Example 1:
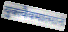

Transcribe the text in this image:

युक्त्वैवमात्मानं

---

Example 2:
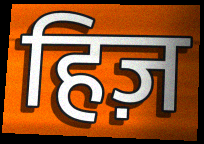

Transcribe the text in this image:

हिज़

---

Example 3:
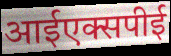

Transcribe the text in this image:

आईएक्सपीई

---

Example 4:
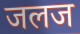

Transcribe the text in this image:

जलज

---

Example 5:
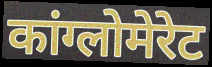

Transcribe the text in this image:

कांग्लोमेरेट